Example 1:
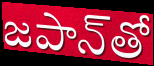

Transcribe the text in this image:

జపాన్‌తో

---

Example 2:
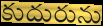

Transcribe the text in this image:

కుదురును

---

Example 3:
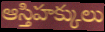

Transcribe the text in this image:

ఆస్తిహక్కులు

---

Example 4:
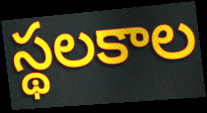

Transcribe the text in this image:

స్థలకాల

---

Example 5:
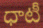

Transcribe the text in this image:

ధాటీ